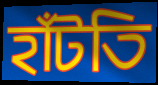
হাঁটতি